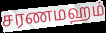
சரணமஹம்